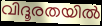
വിദൂരതയിൽ